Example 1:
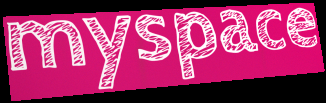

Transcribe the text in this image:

myspace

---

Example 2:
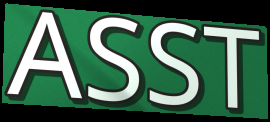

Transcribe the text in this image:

ASST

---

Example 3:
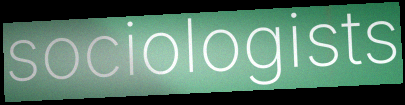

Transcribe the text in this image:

sociologists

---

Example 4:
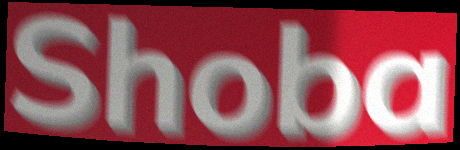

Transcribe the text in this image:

Shoba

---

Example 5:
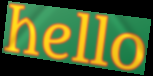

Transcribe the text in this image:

hello